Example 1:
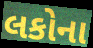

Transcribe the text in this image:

લકોના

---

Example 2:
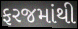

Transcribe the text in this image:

ફરજમાંથી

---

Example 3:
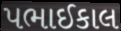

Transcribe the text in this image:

પભાઈકાલ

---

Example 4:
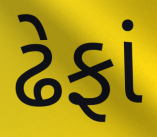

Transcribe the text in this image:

ઢેફાં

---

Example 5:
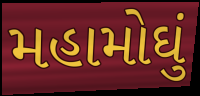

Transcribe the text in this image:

મહામોઘું